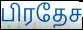
பிரதேச